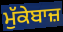
ਮੁੱਕੇਬਾਜ਼